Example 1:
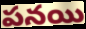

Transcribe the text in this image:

పనయి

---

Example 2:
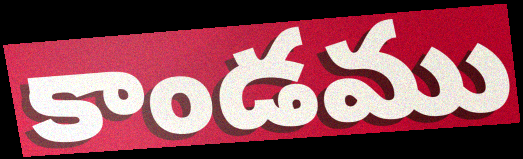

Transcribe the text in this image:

కాండము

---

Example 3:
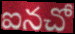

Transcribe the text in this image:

ఐనచో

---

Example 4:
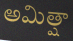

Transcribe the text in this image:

అమిత్షా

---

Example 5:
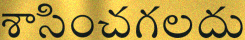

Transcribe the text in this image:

శాసించగలదు